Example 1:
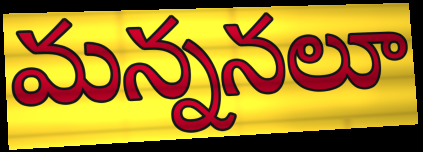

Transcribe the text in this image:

మన్ననలూ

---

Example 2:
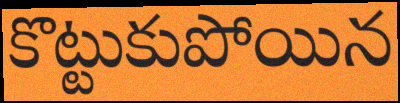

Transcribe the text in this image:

కొట్టుకుపోయిన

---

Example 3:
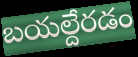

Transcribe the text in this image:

బయల్దేరడం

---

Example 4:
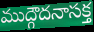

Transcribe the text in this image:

ముద్గౌదనాసక్త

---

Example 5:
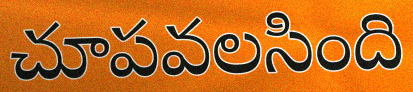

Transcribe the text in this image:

చూపవలసింది